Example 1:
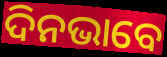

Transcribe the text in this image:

ଦିନଭାବେ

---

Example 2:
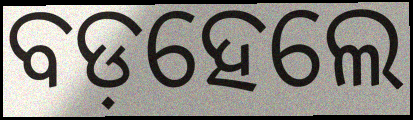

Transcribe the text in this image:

ବଡ଼ହେଲେ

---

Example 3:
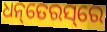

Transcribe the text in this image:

ଧନ୍‌ତେରସ୍‌ରେ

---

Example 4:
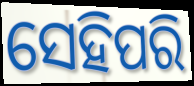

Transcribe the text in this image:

ସେହିପରି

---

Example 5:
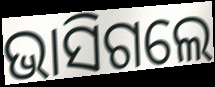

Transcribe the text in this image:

ଭାସିଗଲେ